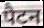
पैटन